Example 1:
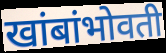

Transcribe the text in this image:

खांबांभोवती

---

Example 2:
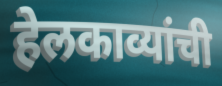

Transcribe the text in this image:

हेलकाव्यांची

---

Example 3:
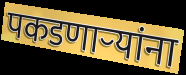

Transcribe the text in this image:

पकडणाऱ्यांना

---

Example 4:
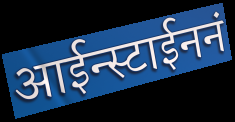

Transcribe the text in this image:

आईन्स्टाईननं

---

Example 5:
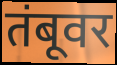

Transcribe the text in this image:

तंबूवर